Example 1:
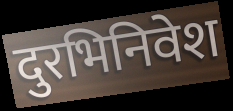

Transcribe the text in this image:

दुरभिनिवेश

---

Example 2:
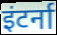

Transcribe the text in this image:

इंटर्ना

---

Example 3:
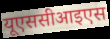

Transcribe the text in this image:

यूएससीआइएस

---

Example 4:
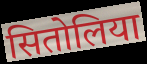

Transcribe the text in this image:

सितोलिया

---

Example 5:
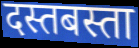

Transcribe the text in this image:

दस्तबस्ता